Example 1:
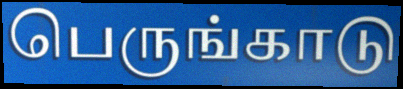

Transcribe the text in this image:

பெருங்காடு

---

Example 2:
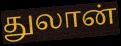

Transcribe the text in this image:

துலான்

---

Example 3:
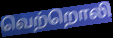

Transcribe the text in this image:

வெற்றொலி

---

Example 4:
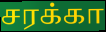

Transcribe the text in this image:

சரக்கா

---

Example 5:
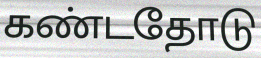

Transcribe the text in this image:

கண்டதோடு